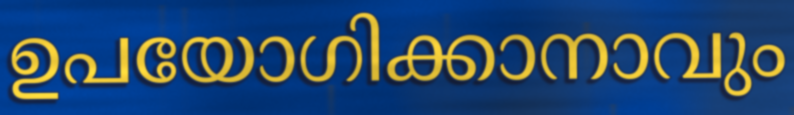
ഉപയോഗിക്കാനാവും